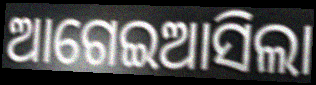
ଆଗେଇଆସିଲା